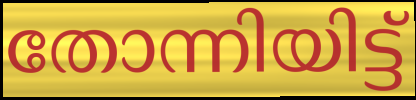
തോന്നിയിട്ട്